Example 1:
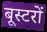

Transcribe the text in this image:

बूस्टरों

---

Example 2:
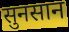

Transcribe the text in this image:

सुनसान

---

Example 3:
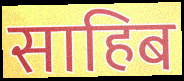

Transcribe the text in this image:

साहिब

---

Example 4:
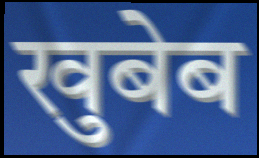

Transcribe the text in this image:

खुबेब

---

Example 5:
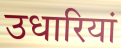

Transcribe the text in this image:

उधारियां